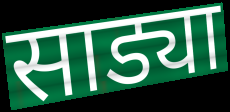
साड्या